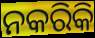
ନକରିକି